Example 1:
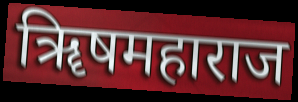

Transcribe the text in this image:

ॠिषमहाराज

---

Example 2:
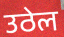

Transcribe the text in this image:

उठेल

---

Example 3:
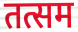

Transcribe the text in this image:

तत्सम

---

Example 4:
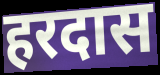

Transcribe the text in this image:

हरदास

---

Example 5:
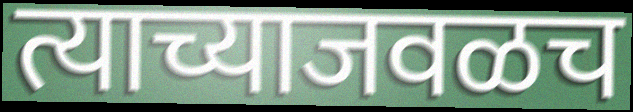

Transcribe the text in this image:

त्याच्याजवळच